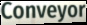
Conveyor